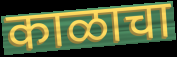
काळाचा